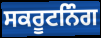
ਸਕਰੂਟਨਿੰਗ